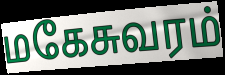
மகேசுவரம்